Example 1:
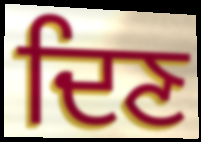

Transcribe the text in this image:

ਦਿਣ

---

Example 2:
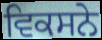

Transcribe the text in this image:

ਵਿਕਸਨੇ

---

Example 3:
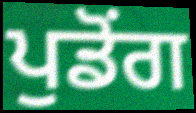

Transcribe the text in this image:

ਪੁਡੋਂਗ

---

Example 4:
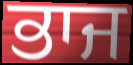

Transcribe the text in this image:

ਭਾਜ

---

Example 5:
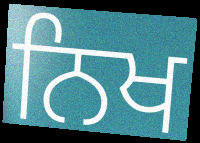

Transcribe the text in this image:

ਨਿਖ